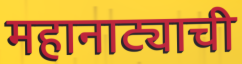
महानाट्याची